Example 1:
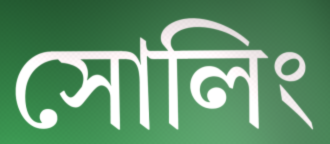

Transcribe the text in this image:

সোলিং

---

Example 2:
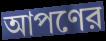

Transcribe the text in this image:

আপণের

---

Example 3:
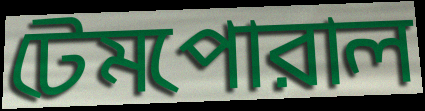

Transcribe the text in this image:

টেমপোরাল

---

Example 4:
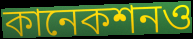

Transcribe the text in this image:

কানেকশনও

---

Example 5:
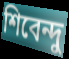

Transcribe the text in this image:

শিবেন্দু